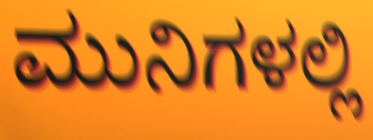
ಮುನಿಗಳಲ್ಲಿ